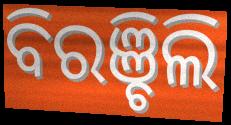
ବିରଞ୍ଚିଲି